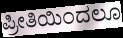
ಪ್ರೀತಿಯಿಂದಲೂ